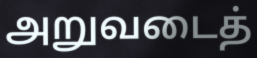
அறுவடைத்